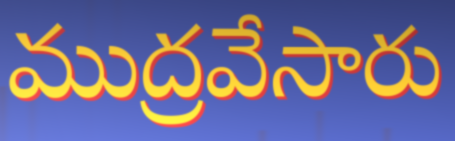
ముద్రవేసారు